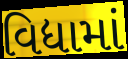
વિદ્યામાં